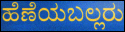
ಹೆಣೆಯಬಲ್ಲರು